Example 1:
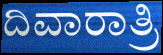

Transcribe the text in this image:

ದಿವಾರಾತ್ರಿ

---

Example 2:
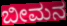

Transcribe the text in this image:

ಬೀಮನ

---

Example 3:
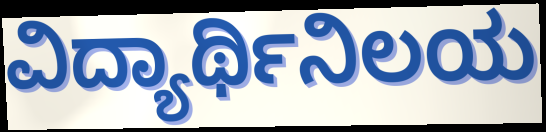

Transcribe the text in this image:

ವಿದ್ಯಾರ್ಥಿನಿಲಯ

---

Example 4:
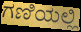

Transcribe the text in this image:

ಗಣಿಯಲ್ಲಿ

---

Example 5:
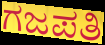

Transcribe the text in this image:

ಗಜಪತಿ